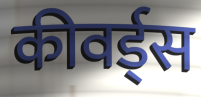
कीवर्ड्स